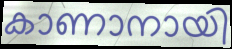
കാണാനായി